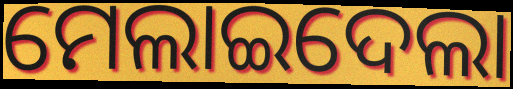
ମେଲାଇଦେଲା